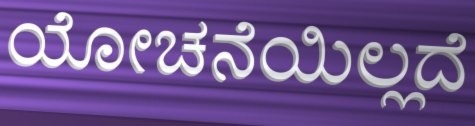
ಯೋಚನೆಯಿಲ್ಲದೆ